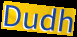
Dudh